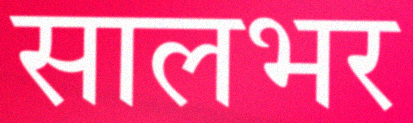
सालभर